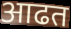
आढत